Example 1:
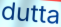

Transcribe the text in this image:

dutta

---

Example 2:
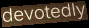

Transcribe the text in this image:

devotedly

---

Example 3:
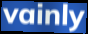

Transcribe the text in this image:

vainly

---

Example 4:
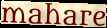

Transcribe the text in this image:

mahare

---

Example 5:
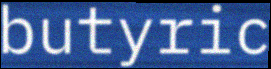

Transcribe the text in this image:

butyric